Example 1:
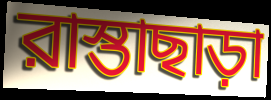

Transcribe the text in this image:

রাস্তাছাড়া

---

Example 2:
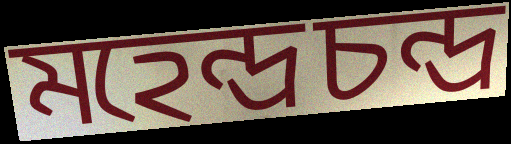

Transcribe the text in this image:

মহেন্দ্রচন্দ্র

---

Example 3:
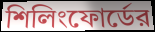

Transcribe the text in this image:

শিলিংফোর্ডের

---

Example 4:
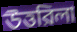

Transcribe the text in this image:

উত্তরিলা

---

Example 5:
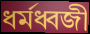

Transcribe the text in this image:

ধর্মধ্বজী